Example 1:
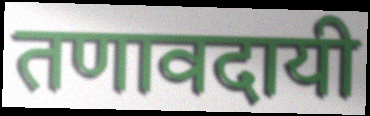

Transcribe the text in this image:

तणावदायी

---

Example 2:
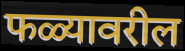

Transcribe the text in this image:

फळ्यावरील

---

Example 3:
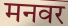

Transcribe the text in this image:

मनवर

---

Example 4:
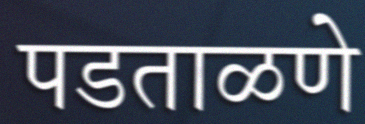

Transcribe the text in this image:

पडताळणे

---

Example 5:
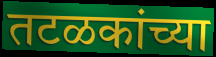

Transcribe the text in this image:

तटळकांच्या